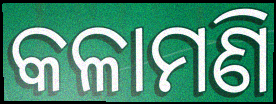
କଳାମଣି